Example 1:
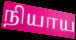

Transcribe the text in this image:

நியாய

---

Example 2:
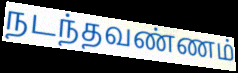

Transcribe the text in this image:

நடந்தவண்ணம்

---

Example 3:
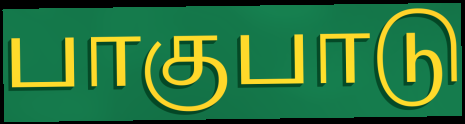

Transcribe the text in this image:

பாகுபாடு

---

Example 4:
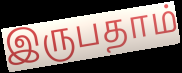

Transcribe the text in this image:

இருபதாம்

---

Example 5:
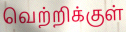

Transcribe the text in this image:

வெற்றிக்குள்